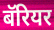
बॅरियर